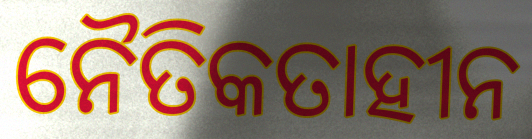
ନୈତିକତାହୀନ